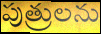
పుత్రులను